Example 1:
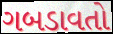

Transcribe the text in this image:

ગબડાવતો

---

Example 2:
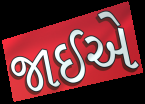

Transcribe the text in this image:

જાઈએ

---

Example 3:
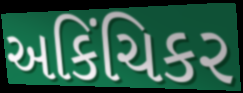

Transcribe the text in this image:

અકિંચિકર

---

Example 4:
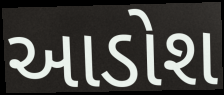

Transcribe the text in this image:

આડોશ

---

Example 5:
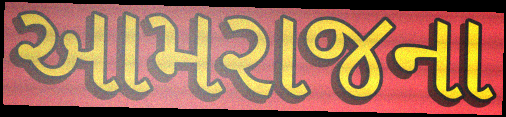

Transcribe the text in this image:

આમરાજના